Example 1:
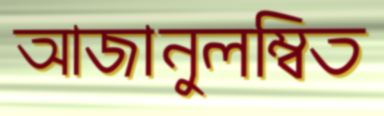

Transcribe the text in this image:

আজানুলম্বিত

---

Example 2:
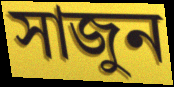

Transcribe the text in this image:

সাজুন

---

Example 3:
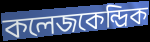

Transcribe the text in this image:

কলেজকেন্দ্রিক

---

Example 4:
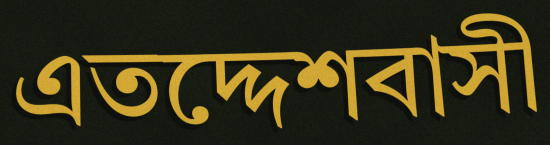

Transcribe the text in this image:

এতদ্দেশবাসী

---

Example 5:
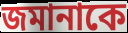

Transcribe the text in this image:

জমানাকে